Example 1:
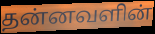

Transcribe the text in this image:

தன்னவளின்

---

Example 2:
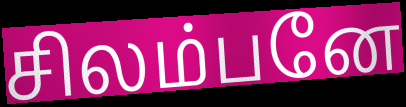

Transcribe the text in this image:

சிலம்பனே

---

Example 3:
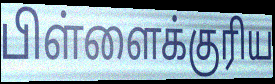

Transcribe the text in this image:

பிள்ளைக்குரிய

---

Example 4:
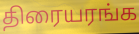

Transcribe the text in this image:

திரையரங்க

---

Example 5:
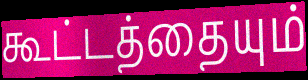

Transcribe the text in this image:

கூட்டத்தையும்